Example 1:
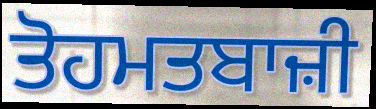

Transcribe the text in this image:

ਤੋਹਮਤਬਾਜ਼ੀ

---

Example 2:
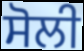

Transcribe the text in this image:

ਸੋਲੀ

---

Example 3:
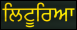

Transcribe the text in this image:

ਲਿਟੂਰਿਆ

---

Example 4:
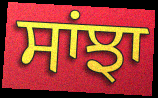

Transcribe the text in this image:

ਸਾਂਝਾ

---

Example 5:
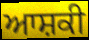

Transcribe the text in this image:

ਆਸ਼ਕੀ